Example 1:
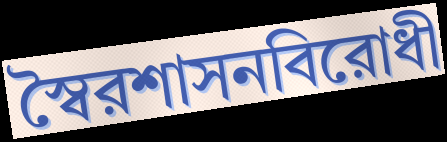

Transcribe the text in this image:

স্বৈরশাসনবিরোধী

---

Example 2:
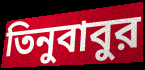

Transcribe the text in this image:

তিনুবাবুর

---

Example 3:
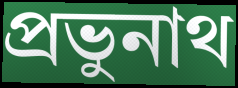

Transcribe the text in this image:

প্রভুনাথ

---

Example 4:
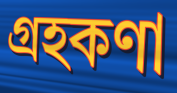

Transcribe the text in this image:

গ্রহকণা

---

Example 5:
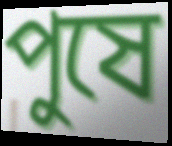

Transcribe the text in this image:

পুষে